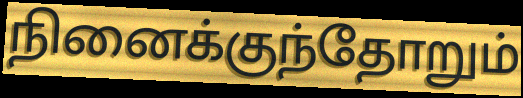
நினைக்குந்தோறும்